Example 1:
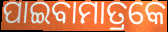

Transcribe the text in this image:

ପାଇବାମାତ୍ରକେ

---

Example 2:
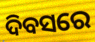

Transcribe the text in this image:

ଦିବସରେ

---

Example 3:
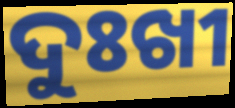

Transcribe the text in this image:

ଦୁଃଖୀ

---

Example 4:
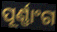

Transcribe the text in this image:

ପୂର୍ଣ୍ଣାଂଗ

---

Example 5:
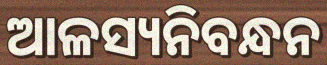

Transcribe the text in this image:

ଆଳସ୍ୟନିବନ୍ଧନ